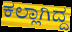
ಕಲ್ಲಾಗಿದ್ದ